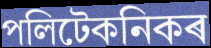
পলিটেকনিকৰ